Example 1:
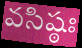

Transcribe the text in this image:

వసిష్ఠః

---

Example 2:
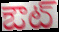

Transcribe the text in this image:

ఔట్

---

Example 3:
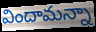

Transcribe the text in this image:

విందామన్నా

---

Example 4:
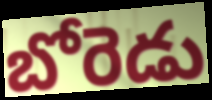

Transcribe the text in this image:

బోరెడు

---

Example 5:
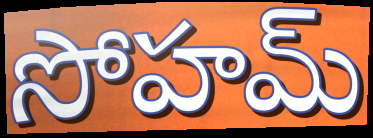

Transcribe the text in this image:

సోహమ్